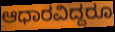
ಆಧಾರವಿದ್ದರೂ